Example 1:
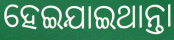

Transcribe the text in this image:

ହେଇଯାଇଥାନ୍ତା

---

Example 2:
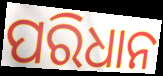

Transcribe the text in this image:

ପରିଧାନ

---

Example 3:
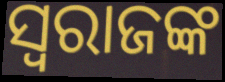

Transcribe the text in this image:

ସ୍ୱରାଜଙ୍କ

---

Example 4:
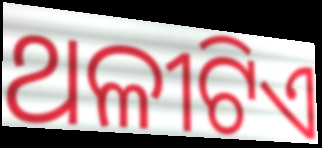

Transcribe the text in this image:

ଥଳୀଟିଏ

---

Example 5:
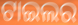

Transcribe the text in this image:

ଟାଇଲର